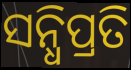
ସନ୍ଧିପ୍ରତି